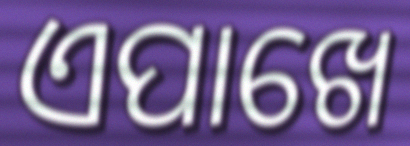
ଏପାଖେ